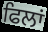
ਫਿਲਾਂ